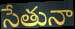
సేతునా